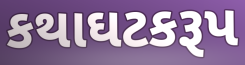
કથાઘટકરૂપ